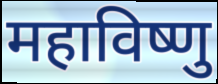
महाविष्णु